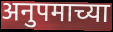
अनुपमाच्या